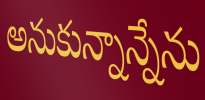
అనుకున్నాన్నేను